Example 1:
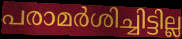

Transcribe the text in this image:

പരാമർശിച്ചിട്ടില്ല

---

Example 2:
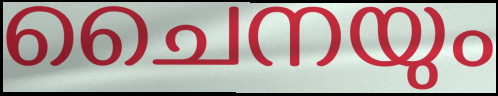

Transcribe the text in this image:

ചൈനയും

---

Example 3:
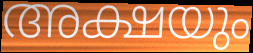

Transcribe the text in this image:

അക്ഷയും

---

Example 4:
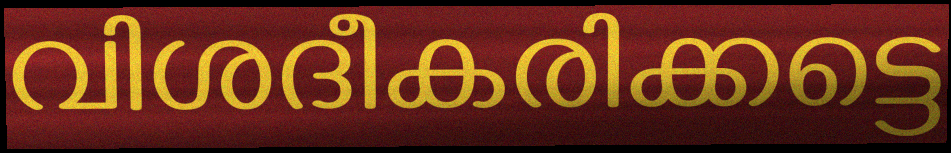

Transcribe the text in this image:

വിശദീകരിക്കട്ടെ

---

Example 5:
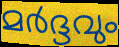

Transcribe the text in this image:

മർദ്ദവും